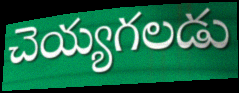
చెయ్యగలడు